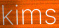
kims